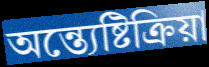
অন্ত্যেষ্টিক্রিয়া